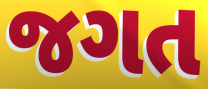
જગત